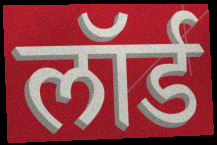
लॉर्ड